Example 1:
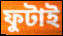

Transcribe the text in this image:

ফুটাই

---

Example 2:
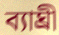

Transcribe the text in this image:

ব্যাঘ্ৰী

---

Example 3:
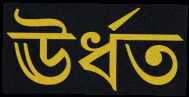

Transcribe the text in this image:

ঊৰ্ধত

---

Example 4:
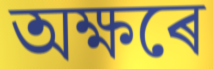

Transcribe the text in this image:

অক্ষৰে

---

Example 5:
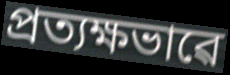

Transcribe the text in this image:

প্ৰত্যক্ষভাৱে